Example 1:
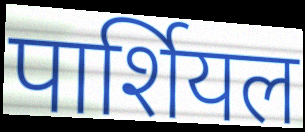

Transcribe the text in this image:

पार्शियल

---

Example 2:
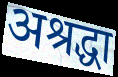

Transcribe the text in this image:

अश्रद्धा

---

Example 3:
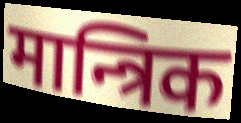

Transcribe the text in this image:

मान्त्रिक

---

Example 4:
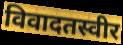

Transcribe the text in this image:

विवादतस्वीर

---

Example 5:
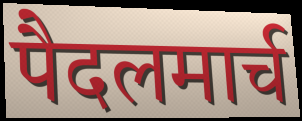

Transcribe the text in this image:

पैदलमार्च